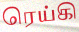
ரெய்கி